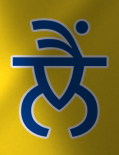
ਲੈਂ